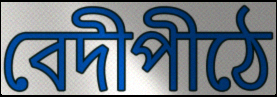
বেদীপীঠে